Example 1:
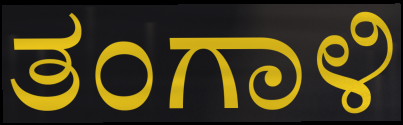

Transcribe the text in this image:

ತಂಗಾಳಿ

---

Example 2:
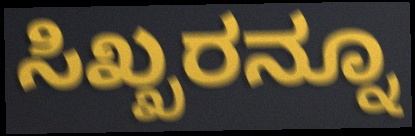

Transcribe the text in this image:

ಸಿಖ್ಖರನ್ನೂ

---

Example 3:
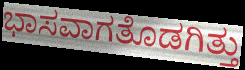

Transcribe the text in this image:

ಭಾಸವಾಗತೊಡಗಿತ್ತು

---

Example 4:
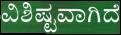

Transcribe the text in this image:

ವಿಶಿಷ್ಟವಾಗಿದೆ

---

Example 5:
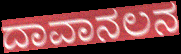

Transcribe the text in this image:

ದಾವಾನಲನ